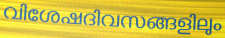
വിശേഷദിവസങ്ങളിലും